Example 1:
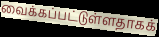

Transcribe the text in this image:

வைக்கப்பட்டுள்ளதாகக்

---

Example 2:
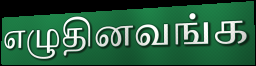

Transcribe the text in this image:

எழுதினவங்க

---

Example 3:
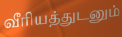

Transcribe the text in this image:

வீரியத்துடனும்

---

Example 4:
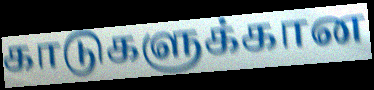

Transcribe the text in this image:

காடுகளுக்கான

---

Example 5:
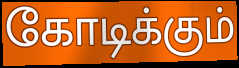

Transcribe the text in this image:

கோடிக்கும்